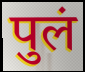
पुलं